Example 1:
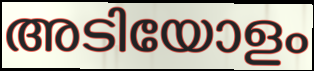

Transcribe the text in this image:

അടിയോളം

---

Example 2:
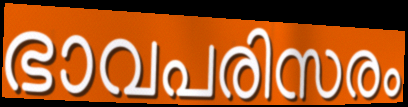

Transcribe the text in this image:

ഭാവപരിസരം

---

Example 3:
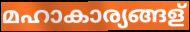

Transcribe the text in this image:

മഹാകാര്യങ്ങള്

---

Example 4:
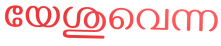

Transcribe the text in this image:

യേശുവെന്ന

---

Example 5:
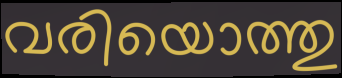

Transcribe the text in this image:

വരിയൊത്തു